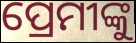
ପ୍ରେମୀଙ୍କୁ